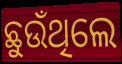
ଛୁଉଁଥିଲେ